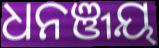
ଧନଞ୍ଜୟ